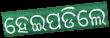
ହେଇପଡିଲେ